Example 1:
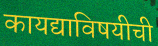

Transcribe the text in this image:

कायद्याविषयीची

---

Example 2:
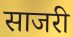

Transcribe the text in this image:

साजरी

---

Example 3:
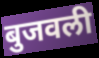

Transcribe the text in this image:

बुजवली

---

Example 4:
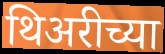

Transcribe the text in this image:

थिअरीच्या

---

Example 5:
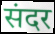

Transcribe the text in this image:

संदर